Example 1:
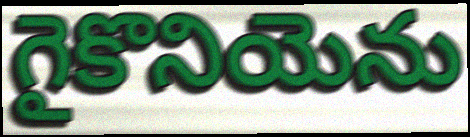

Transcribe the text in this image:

గైకొనియెను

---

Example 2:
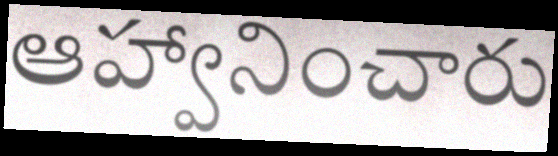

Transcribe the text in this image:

ఆహ్వానించారు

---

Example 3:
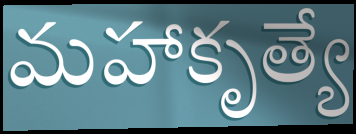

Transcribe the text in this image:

మహాకృత్యే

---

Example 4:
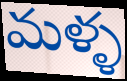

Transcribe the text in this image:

మళ్ళ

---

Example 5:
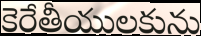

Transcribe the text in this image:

కెరేతీయులకును